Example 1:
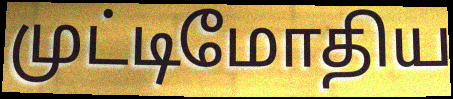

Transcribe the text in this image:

முட்டிமோதிய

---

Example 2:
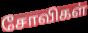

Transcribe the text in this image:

சோவிகள்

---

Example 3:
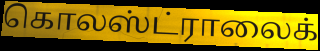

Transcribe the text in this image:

கொலஸ்ட்ராலைக்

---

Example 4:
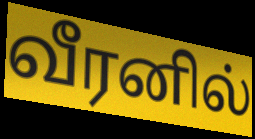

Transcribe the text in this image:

வீரனில்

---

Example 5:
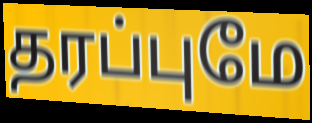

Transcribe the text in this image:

தரப்புமே